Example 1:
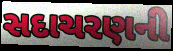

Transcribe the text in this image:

સદાચરણની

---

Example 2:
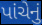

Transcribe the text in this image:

પાંચેનું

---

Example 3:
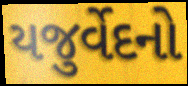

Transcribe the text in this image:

યજુર્વેદનો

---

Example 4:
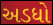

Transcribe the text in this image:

અડધો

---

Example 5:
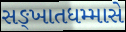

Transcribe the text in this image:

સઙ્ખાતધમ્માસે